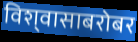
विश्वासाबरोबर